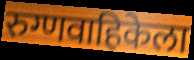
रुग्णवाहिकेला